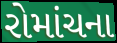
રોમાંચના